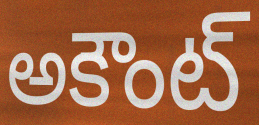
అకౌంట్